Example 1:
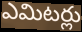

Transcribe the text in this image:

ఎమిటర్లు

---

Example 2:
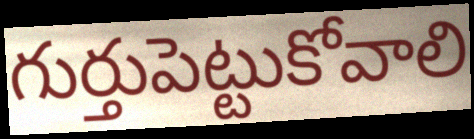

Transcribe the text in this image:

గుర్తుపెట్టుకోవాలి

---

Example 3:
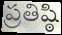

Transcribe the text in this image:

ప్రతిష్ఠి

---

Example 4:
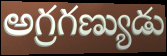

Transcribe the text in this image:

అగ్రగణ్యుడు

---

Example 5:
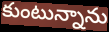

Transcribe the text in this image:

కుంటున్నాను